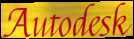
Autodesk